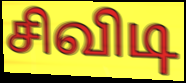
சிவிடி